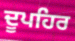
ਦੂਪਹਿਰ